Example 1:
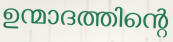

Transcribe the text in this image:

ഉന്മാദത്തിന്റെ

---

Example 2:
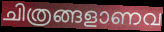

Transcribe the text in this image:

ചിത്രങ്ങളാണവ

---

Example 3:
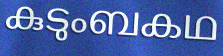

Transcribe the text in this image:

കുടുംബകഥ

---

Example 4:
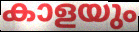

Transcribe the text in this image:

കാളയും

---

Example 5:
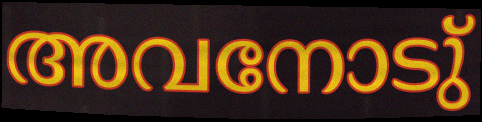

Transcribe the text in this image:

അവനോടു്